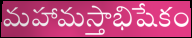
మహామస్తాభిషేకం